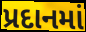
પ્રદાનમાં